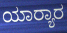
ಯಾರ‍್ಯಾರ